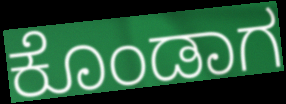
ಕೊಂಡಾಗ